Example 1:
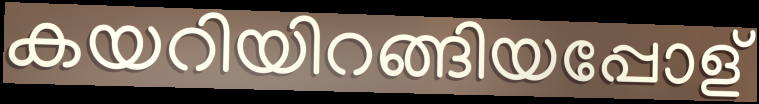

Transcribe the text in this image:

കയറിയിറങ്ങിയപ്പോള്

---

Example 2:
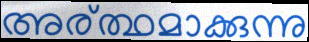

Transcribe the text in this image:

അര്ത്ഥമാക്കുന്നു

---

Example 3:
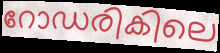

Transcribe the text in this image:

റോഡരികിലെ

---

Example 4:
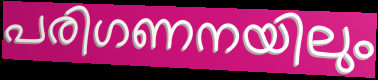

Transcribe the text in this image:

പരിഗണനയിലും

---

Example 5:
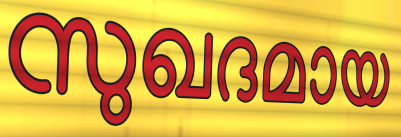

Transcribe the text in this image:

സുഖദമായ